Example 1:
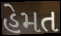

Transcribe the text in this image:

હેમત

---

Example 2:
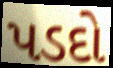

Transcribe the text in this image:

પડદો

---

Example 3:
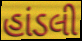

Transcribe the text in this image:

હાંડલી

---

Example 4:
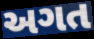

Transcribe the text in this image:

અગત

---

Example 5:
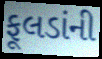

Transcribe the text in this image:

ફૂલડાંની